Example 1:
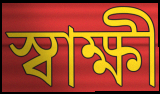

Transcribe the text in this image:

স্বাক্ষী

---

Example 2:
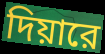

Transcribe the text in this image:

দিয়ারে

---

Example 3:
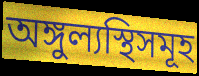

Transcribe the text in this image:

অঙ্গুল্যস্থিসমূহ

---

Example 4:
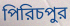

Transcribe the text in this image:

পিরিচপুর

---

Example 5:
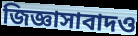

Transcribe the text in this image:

জিজ্ঞাসাবাদও